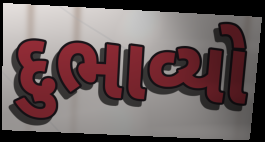
દુભાવ્યો